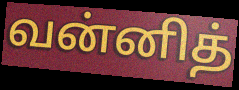
வன்னித்